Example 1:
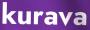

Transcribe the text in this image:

kurava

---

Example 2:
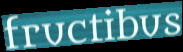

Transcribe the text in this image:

fructibus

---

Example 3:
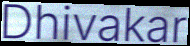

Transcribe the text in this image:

Dhivakar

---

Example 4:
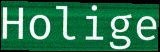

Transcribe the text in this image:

Holige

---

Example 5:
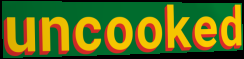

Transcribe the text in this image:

uncooked